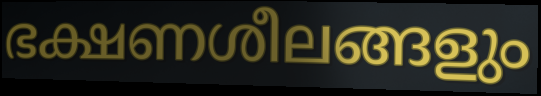
ഭക്ഷണശീലങ്ങളും